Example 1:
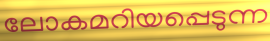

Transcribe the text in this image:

ലോകമറിയപ്പെടുന്ന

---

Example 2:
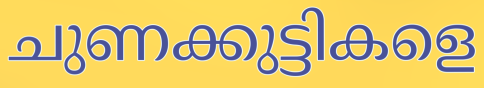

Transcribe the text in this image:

ചുണക്കുട്ടികളെ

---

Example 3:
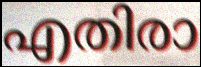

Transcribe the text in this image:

എതിരാ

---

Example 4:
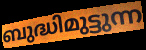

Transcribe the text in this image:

ബുദ്ധിമുട്ടുന്ന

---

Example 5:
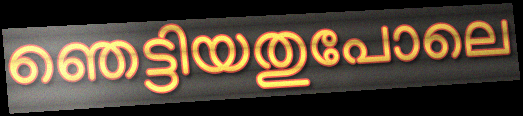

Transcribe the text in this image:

ഞെട്ടിയതുപോലെ